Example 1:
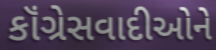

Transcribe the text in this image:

કૉંગ્રેસવાદીઓને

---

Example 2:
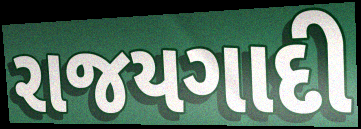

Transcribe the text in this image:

રાજયગાદી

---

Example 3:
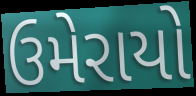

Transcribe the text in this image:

ઉમેરાયો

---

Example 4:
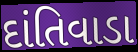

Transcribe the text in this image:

દાંતિવાડા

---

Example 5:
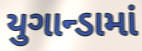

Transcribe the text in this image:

યુગાન્ડામાં